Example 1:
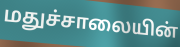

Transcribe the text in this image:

மதுச்சாலையின்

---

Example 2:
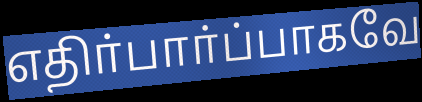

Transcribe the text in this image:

எதிர்பார்ப்பாகவே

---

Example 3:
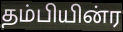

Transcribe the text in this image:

தம்பியின்ர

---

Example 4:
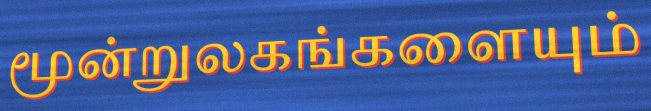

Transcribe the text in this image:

மூன்றுலகங்களையும்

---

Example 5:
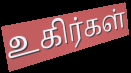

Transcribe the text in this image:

உகிர்கள்